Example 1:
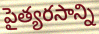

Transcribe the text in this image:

పైత్యరసాన్ని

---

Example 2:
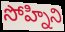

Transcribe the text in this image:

సోహ్నిని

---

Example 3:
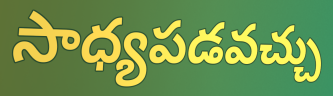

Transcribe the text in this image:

సాధ్యపడవచ్చు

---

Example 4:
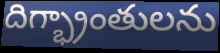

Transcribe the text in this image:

దిగ్భ్రాంతులను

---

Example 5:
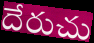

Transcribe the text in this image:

దేరుచు